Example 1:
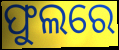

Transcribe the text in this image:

ଫୁଲରେ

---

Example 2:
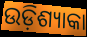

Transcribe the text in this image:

ଉଡ଼ିଶ୍ୟାକା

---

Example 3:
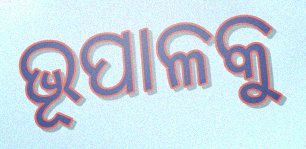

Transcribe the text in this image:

ଭୂପାଳକୁ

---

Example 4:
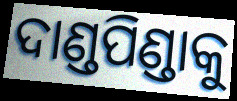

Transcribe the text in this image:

ଦାଣ୍ଡପିଣ୍ଡାକୁ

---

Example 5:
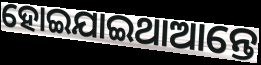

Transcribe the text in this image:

ହୋଇଯାଇଥାଆନ୍ତେ